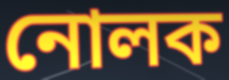
নোলক